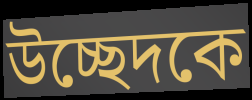
উচ্ছেদকে